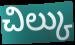
చిల్కు